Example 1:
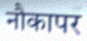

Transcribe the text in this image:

नौकापर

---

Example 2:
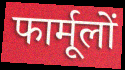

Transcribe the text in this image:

फार्मूलों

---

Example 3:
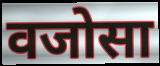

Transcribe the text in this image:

वजोसा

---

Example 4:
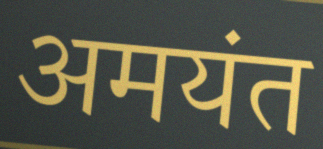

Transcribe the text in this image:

अमयंत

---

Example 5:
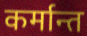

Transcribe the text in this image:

कर्मान्त